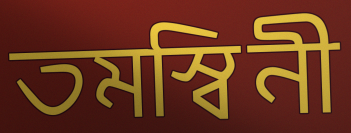
তমস্বিনী